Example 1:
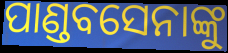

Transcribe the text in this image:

ପାଣ୍ଡବସେନାଙ୍କୁ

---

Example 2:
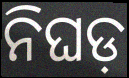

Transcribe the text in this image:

ନିଘଡ଼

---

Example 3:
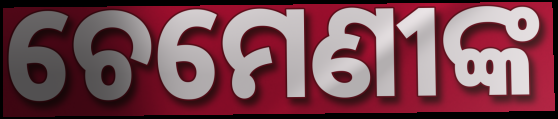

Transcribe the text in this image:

ଚେମେଣୀଙ୍କ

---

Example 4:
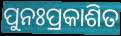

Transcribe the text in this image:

ପୁନଃପ୍ରକାଶିତ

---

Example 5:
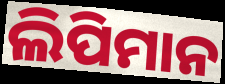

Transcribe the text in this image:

ଲିପିମାନ